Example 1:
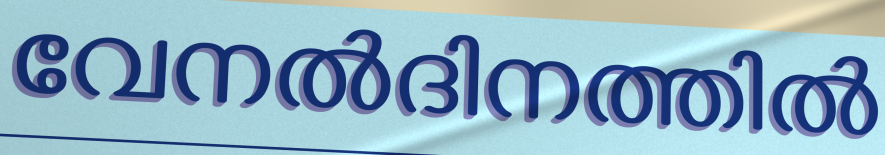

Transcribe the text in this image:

വേനൽദിനത്തിൽ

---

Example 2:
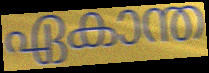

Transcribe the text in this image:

ഏകാന്ത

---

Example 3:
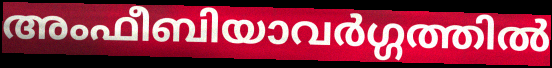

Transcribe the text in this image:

അംഫീബിയാവർഗ്ഗത്തിൽ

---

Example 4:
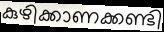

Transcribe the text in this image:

കുഴിക്കാണക്കണ്ടി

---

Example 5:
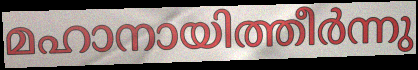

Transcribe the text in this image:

മഹാനായിത്തീർന്നു